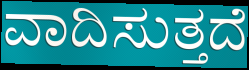
ವಾದಿಸುತ್ತದೆ